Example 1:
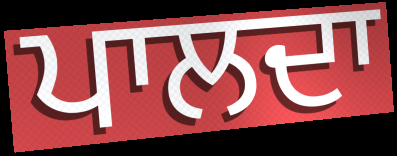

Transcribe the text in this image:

ਪਾਲਦਾ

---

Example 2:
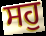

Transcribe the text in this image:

ਸਹੁ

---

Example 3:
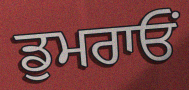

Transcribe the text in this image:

ਡੁਮਰਾਓਂ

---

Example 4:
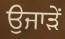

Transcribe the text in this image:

ਉਜਾੜੇਂ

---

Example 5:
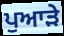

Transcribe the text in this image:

ਪੁਆੜੇ